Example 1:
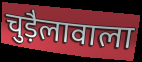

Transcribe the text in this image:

चुड़ैलावाला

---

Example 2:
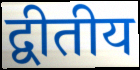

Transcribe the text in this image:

द्वीतीय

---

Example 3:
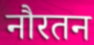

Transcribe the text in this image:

नौरतन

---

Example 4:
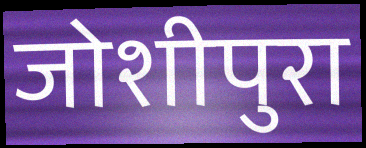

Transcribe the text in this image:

जोशीपुरा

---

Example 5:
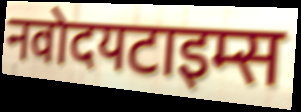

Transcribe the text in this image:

नवोदयटाइम्स